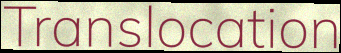
Translocation